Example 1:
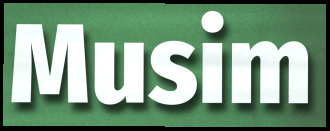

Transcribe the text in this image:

Musim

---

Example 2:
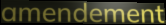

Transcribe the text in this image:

amendement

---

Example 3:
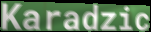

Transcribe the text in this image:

Karadzic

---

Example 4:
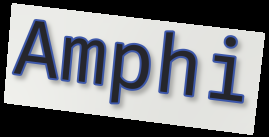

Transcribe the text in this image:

Amphi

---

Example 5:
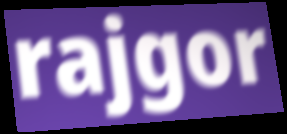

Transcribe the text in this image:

rajgor